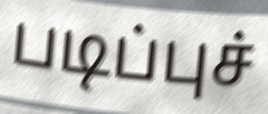
படிப்புச்